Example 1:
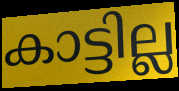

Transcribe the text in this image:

കാട്ടില്ല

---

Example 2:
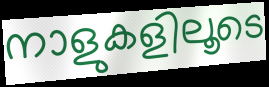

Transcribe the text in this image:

നാളുകളിലൂടെ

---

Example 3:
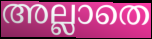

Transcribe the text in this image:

അല്ലാതെ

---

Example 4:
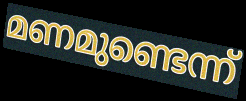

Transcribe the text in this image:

മണമുണ്ടെന്ന്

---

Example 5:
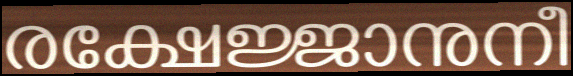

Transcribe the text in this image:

രക്ഷേജ്ജാനുനീ